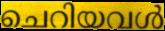
ചെറിയവൾ